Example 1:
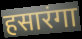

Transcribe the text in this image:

हसारंगा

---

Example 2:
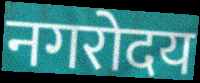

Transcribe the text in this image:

नगरोदय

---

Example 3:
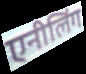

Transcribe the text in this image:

एनीलिंग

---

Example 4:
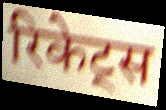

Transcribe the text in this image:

रिकेट्स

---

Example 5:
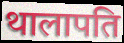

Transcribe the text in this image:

थालापति